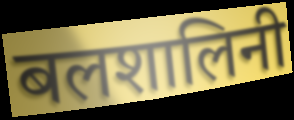
बलशालिनी